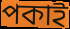
পকাই